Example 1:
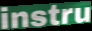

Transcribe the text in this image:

instru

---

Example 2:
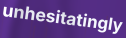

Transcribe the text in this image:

unhesitatingly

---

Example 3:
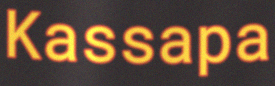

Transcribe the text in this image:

Kassapa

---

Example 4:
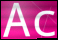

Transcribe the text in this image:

Ac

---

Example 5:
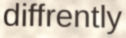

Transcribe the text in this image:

diffrently